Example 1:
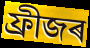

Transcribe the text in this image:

ফ্ৰীজৰ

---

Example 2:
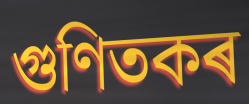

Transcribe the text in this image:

গুণিতকৰ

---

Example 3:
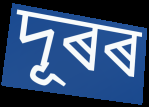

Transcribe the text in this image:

দূৰৰ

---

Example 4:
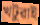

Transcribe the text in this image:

খটুৱাই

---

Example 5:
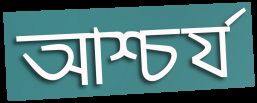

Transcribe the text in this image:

আশ্চৰ্য